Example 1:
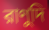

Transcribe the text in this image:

রাণুদি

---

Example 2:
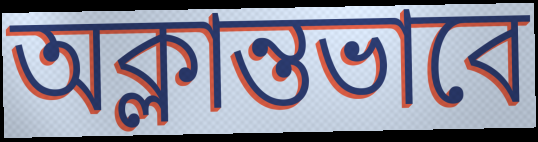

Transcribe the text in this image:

অক্লান্তভাবে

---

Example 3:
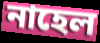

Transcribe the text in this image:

নাহেল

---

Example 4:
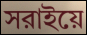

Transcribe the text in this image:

সরাইয়ে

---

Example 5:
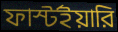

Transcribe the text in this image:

ফার্স্টইয়ারি